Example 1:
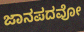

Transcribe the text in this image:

ಜಾನಪದವೋ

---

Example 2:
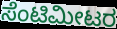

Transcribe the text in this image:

ಸೆಂಟಿಮೀಟರ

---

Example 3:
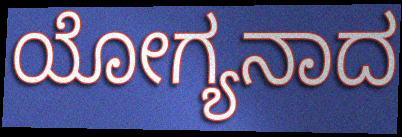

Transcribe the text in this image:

ಯೋಗ್ಯನಾದ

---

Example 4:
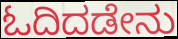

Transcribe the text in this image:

ಓದಿದಡೇನು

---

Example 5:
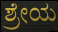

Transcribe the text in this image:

ಶ್ರೇಯ